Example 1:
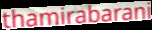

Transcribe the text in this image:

thamirabarani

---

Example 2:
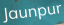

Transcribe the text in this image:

Jaunpur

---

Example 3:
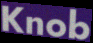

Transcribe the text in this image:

Knob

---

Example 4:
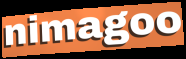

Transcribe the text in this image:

nimagoo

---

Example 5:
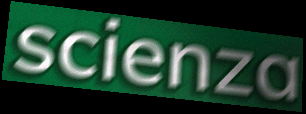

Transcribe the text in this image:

scienza